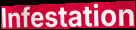
Infestation